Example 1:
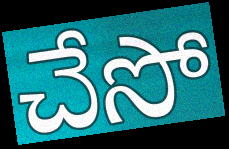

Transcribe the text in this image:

చేసో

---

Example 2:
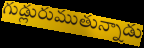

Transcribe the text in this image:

గుడ్లురుముతున్నాడు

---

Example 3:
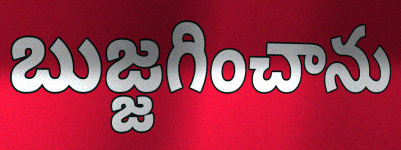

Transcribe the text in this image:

బుజ్జగించాను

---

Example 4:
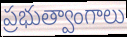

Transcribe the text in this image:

ప్రభుత్వాంగాలు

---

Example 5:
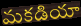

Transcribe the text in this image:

మకడియా